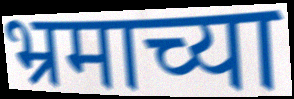
भ्रमाच्या